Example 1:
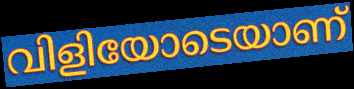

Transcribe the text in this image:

വിളിയോടെയാണ്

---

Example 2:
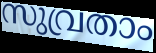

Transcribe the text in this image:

സുവ്രതാം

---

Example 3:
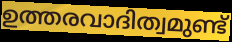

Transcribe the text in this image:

ഉത്തരവാദിത്വമുണ്ട്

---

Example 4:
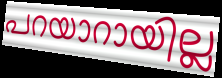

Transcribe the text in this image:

പറയാറായില്ല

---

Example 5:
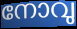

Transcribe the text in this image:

നോവു